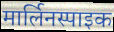
मार्लिनस्पाइक